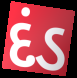
દંડ